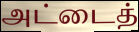
அட்டைத்